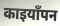
काइयाँपन